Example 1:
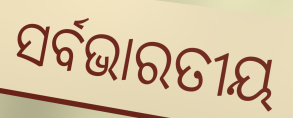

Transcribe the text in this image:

ସର୍ବଭାରତୀୟ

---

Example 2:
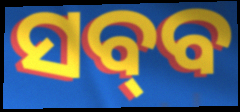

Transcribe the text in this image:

ସବ୍‌ବ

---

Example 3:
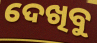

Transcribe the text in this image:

ଦେଖିବୁ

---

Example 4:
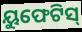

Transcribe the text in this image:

ୟୁଫେଟିସ୍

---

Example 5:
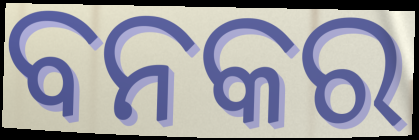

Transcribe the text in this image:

ବନକର